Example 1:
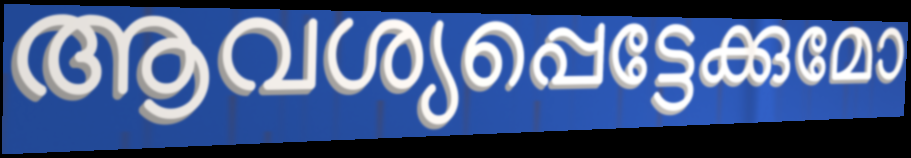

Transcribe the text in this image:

ആവശ്യപ്പെട്ടേക്കുമോ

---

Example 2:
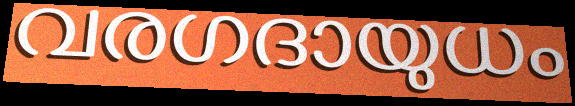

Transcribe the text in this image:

വരഗദായുധം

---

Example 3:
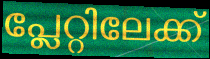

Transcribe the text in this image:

പ്ലേറ്റിലേക്ക്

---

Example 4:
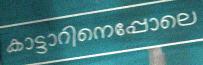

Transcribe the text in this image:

കാട്ടാറിനെപ്പോലെ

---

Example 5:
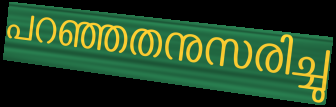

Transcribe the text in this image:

പറഞ്ഞതനുസരിച്ചു